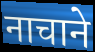
नाचाने